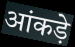
आंकड़े